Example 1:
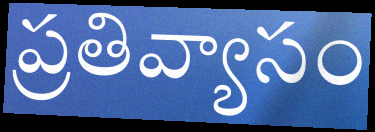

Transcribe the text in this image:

ప్రతివ్యాసం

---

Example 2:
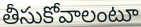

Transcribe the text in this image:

తీసుకోవాలంటూ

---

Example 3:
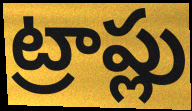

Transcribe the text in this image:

ట్రాప్లు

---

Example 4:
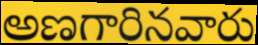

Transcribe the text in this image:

అణగారినవారు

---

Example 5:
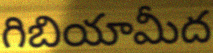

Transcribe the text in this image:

గిబియామీద